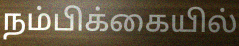
நம்பிக்கையில்